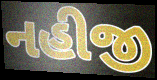
નહીજી